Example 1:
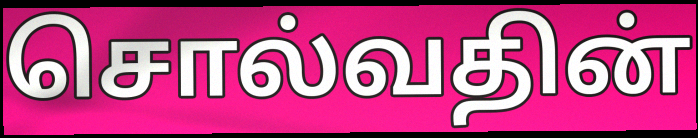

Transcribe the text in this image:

சொல்வதின்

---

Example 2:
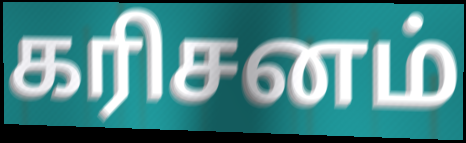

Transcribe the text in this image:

கரிசனம்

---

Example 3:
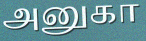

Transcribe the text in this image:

அனுகா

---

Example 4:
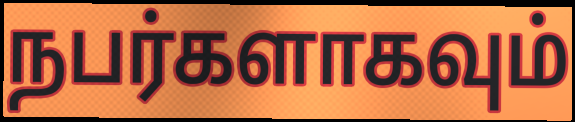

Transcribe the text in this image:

நபர்களாகவும்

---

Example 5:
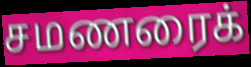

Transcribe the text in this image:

சமணரைக்